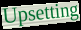
Upsetting